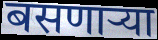
बसणार्‍या